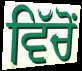
ਵਿੱਚੋੰ